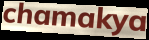
chamakya